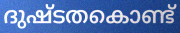
ദുഷ്ടതകൊണ്ട്